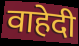
वाहेदी